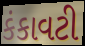
કંકાવટી